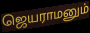
ஜெயராமனும்